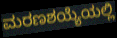
ಮರಣಶಯ್ಯೆಯಲ್ಲಿ